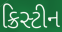
ક્રિસ્ટીન